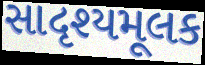
સાદૃશ્યમૂલક